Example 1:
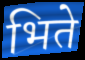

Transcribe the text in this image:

भिते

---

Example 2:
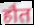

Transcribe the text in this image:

हौत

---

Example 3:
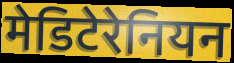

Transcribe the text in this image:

मेडिटेरेनियन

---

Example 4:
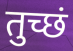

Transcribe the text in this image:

तुच्छं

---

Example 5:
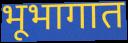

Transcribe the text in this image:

भूभागात